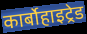
कार्बोहाइट्रेड